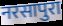
नरसापुरा